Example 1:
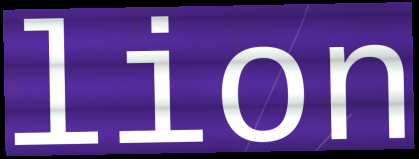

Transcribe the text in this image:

lion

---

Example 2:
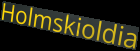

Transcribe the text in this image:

Holmskioldia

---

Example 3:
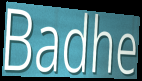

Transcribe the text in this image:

Badhe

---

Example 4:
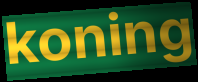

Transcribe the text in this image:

koning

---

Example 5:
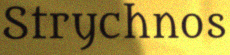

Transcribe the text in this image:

Strychnos